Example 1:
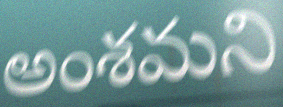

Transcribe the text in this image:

అంశమని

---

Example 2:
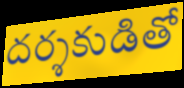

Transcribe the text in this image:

దర్శకుడితో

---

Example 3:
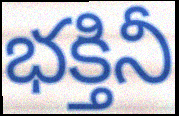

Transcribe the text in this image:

భక్తినీ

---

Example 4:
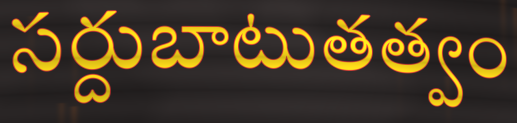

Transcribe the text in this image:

సర్దుబాటుతత్వం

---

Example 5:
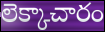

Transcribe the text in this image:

లెక్కాచారం